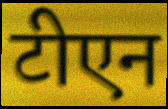
टीएन